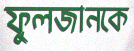
ফুলজানকে